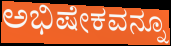
ಅಭಿಷೇಕವನ್ನೂ